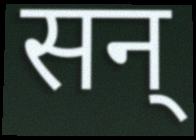
सन्